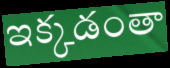
ఇక్కడంతా